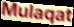
Mulaqat